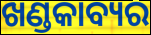
ଖଣ୍ଡକାବ୍ୟର